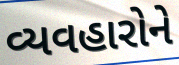
વ્યવહારોને